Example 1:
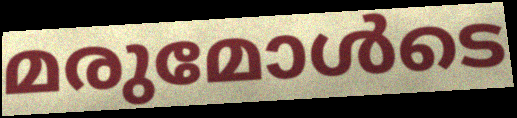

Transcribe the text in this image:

മരുമോൾടെ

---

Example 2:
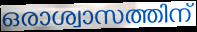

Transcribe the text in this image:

ഒരാശ്വാസത്തിന്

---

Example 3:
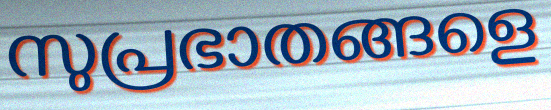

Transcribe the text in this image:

സുപ്രഭാതങ്ങളെ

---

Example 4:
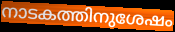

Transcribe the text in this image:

നാടകത്തിനുശേഷം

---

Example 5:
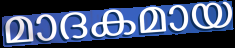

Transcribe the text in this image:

മാദകമായ